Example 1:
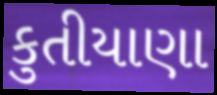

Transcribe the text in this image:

કુતીયાણા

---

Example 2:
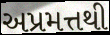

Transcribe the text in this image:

અપ્રમત્તથી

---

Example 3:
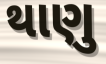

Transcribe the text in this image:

થાણુ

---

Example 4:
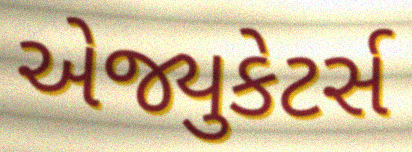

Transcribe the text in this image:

એજ્યુકેટર્સ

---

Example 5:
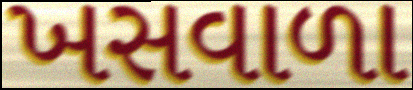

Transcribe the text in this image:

ખસવાળા